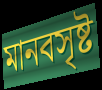
মানবসৃষ্ট